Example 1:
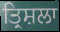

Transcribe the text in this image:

ਤ੍ਰਿਸ਼ਲਾ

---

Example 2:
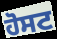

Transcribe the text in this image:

ਹੋਸਟ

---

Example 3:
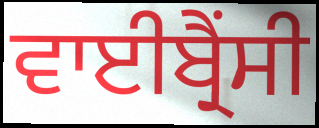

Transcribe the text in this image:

ਵਾਈਬ੍ਰੈਂਸੀ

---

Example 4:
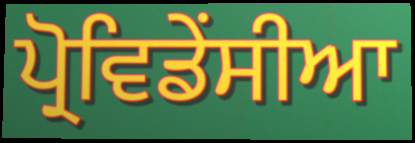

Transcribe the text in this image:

ਪ੍ਰੋਵਿਡੇਂਸੀਆ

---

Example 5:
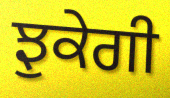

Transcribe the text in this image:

ਝੁਕੇਗੀ